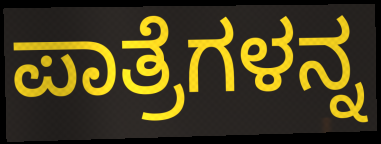
ಪಾತ್ರೆಗಳನ್ನ